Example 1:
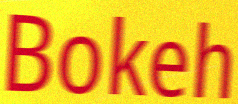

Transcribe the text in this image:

Bokeh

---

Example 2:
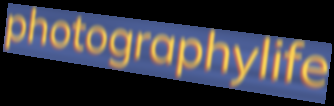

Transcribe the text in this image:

photographylife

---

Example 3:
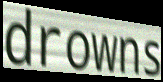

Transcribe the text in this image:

drowns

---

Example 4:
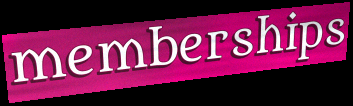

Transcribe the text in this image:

memberships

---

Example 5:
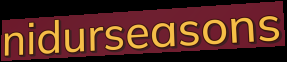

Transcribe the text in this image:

nidurseasons